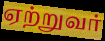
ஏற்றுவர்